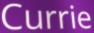
Currie